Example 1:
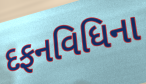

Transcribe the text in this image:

દફનવિધિના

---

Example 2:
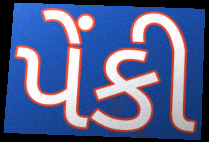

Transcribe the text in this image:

પેંકી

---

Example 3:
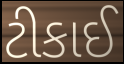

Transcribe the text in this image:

ટીકાઈ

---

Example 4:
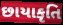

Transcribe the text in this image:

છાયાકૃતિ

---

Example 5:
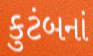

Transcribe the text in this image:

કુટંબનાં